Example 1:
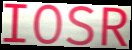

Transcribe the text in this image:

IOSR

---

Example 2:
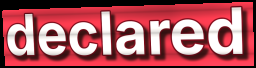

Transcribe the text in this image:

declared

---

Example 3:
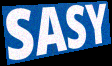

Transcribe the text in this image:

SASY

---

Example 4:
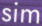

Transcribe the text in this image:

sim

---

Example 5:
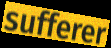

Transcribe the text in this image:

sufferer